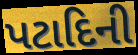
પટાદિની